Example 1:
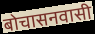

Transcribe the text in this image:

बोचासनवासी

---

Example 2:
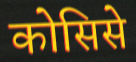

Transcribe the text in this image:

कोसिसे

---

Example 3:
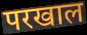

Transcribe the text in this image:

परखाल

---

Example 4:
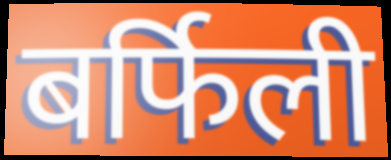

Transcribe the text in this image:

बर्फिली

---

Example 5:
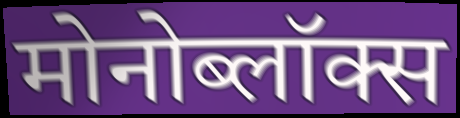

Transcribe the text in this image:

मोनोब्लॉक्स